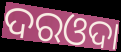
ଦରଓଦା